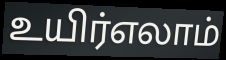
உயிர்எலாம்